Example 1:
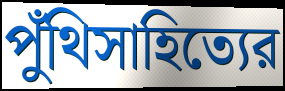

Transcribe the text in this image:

পুঁথিসাহিত্যের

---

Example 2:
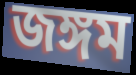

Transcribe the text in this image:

জঙ্গম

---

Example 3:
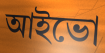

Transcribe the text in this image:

আইভো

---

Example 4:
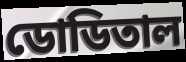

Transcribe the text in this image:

ডোডিতাল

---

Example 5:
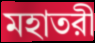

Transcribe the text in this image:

মহাতরী